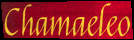
Chamaeleo